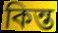
কিন্ত